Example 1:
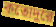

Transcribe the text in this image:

কতোদূরে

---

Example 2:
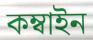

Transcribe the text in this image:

কম্বাইন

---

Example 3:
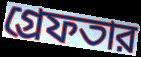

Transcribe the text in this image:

গ্রেফতার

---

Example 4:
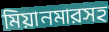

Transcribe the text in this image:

মিয়ানমারসহ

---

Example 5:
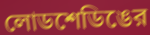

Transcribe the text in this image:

লোডশেডিঙের